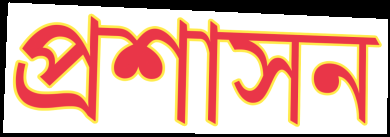
প্ৰশাসন